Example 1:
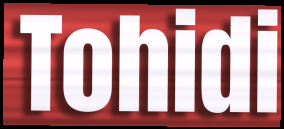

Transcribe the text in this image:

Tohidi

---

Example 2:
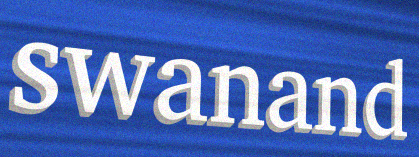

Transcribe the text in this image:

swanand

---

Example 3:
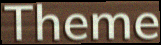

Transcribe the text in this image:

Theme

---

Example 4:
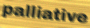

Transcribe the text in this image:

palliative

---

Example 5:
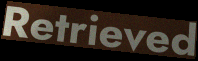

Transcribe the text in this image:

Retrieved